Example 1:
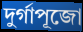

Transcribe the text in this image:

দুর্গাপূজো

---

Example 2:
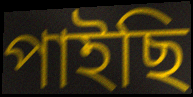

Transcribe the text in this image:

পাইছি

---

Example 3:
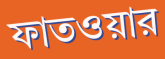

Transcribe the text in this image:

ফাতওয়ার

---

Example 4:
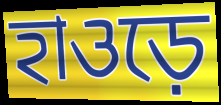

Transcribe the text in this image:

হাওড়ে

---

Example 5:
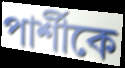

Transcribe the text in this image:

পার্শীকে